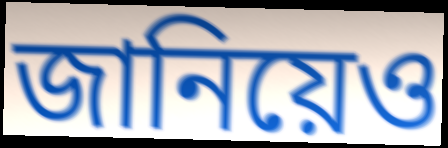
জানিয়েও